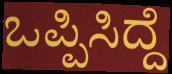
ಒಪ್ಪಿಸಿದ್ದೆ